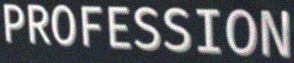
PROFESSION